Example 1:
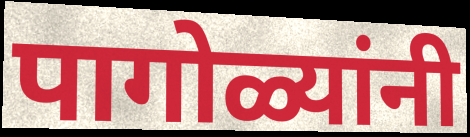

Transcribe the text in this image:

पागोळ्यांनी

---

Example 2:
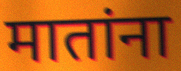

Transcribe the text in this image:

मातांना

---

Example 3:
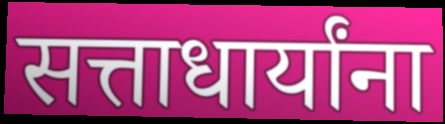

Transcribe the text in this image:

सत्ताधार्यांना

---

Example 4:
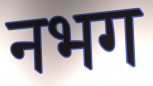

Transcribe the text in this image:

नभग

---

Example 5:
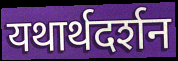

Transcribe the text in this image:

यथार्थदर्शन